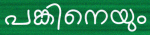
പങ്കിനെയും